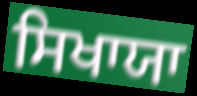
ਸਿਖਾਯਾ